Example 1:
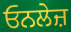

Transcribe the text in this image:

ਓਨਲੇਜ਼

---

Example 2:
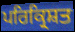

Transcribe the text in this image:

ਪਰਿਕ੍ਰਿਸ਼ਤ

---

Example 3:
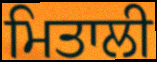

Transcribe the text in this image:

ਮਿਤਾਲੀ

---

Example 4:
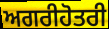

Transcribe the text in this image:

ਅਗਰੀਹੋਤਰੀ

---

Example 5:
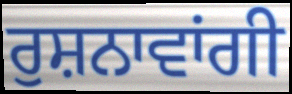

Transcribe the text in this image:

ਰੁਸ਼ਨਾਵਾਂਗੀ